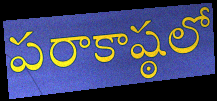
పరాకాష్ఠలో